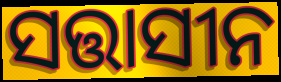
ସତ୍ତାସୀନ